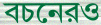
বচনেরও